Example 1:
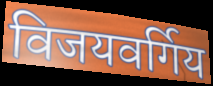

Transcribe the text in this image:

विजयवर्गिय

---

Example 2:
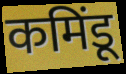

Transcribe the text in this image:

कमिंडू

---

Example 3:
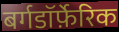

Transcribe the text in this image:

बर्गडॉर्फ़ेरिक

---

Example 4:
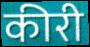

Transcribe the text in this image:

कीरी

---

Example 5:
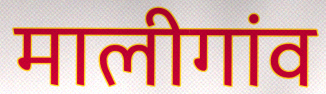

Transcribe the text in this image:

मालीगांव